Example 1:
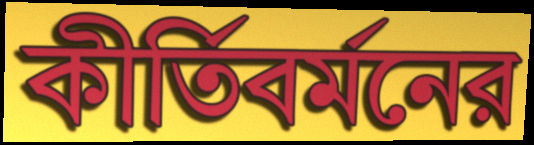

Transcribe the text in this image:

কীর্তিবর্মনের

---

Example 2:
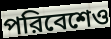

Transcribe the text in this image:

পরিবেশেও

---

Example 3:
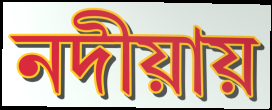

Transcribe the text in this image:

নদীয়ায়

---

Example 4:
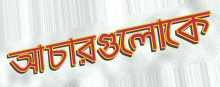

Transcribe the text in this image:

আচারগুলোকে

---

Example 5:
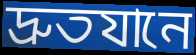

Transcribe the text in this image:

দ্রুতযানে